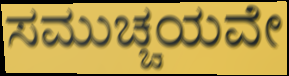
ಸಮುಚ್ಚಯವೇ